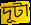
দূটা